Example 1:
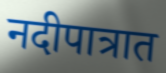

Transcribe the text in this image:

नदीपात्रात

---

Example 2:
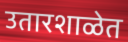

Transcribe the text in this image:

उतारशाळेत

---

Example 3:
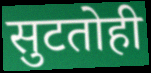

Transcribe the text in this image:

सुटतोही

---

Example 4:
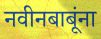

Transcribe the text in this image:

नवीनबाबूंना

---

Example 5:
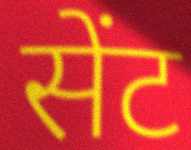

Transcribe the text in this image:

सेंट